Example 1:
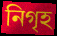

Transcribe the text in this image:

নিগৃহ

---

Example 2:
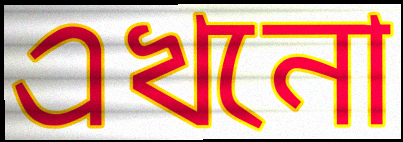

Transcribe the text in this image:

এখনো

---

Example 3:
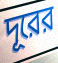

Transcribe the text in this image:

দূরের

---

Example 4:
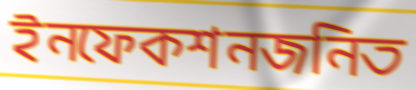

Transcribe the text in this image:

ইনফেকশনজনিত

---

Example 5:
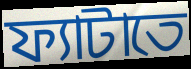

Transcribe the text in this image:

ফ্যাটাতে